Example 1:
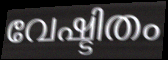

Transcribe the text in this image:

വേഷ്ടിതം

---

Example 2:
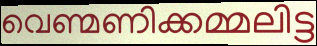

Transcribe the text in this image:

വെണ്മണിക്കമ്മലിട്ട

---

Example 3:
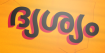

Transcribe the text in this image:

ദ്യശ്യം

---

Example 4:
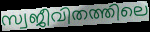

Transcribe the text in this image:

സ്വജീവിതത്തിലെ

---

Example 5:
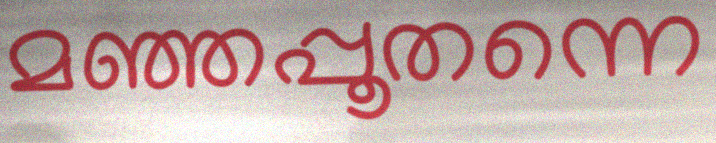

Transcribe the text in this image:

മഞ്ഞപ്പൂതന്നെ